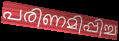
പരിണമിപ്പിച്ച